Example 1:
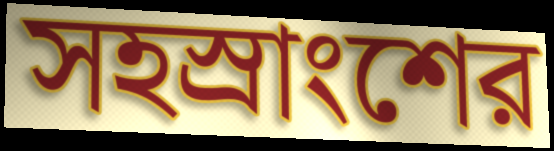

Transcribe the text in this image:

সহস্রাংশের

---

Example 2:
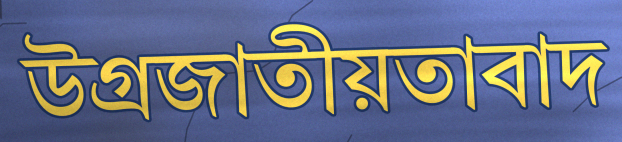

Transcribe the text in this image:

উগ্রজাতীয়তাবাদ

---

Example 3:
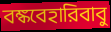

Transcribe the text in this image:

বঙ্কবেহারিবাবু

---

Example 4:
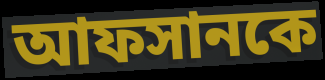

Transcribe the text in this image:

আফসানকে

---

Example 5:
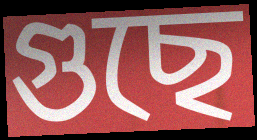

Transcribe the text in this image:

গুছে